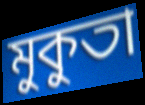
মুকুতা